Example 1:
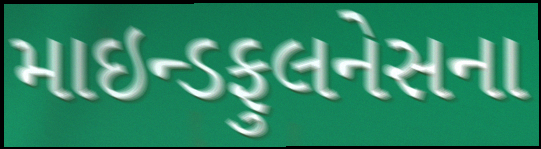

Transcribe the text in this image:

માઇન્ડફુલનેસના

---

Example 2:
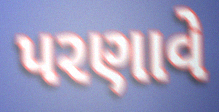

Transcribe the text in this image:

પરણાવે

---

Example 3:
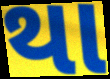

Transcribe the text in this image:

થા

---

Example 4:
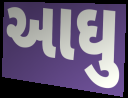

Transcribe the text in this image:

આઘુ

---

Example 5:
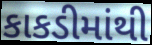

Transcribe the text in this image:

કાકડીમાંથી